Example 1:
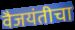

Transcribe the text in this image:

वैजयंतीचा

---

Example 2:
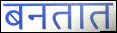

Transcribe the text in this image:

बनतात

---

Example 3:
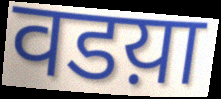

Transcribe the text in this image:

वडय़ा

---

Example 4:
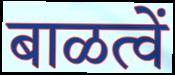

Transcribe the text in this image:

बाळत्वें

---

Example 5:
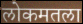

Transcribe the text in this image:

लोकमतला